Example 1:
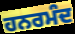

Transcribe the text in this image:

ਹਨਰਮੰਦ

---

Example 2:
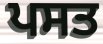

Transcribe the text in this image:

ਪਸਤ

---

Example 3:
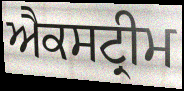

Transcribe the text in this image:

ਐਕਸਟ੍ਰੀਮ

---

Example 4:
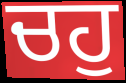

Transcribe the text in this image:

ਚਹੁ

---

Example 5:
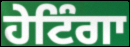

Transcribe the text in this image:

ਹੇਟਿੰਗਾ